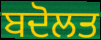
ਬਦੋਲਤ